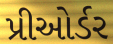
પ્રીઓર્ડર